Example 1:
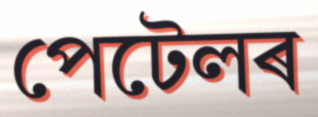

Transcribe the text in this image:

পেটেলৰ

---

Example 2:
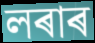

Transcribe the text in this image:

লৰাৰ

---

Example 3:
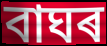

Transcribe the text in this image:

বাঘৰ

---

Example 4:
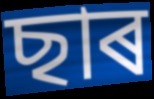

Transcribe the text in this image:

ছাৰ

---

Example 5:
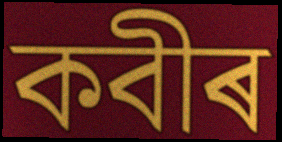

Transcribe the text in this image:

কবীৰ